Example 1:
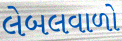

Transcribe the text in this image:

લેબલવાળો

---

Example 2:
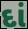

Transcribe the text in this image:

દાં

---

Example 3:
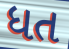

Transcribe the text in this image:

ધત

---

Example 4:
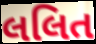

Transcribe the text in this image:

લલિત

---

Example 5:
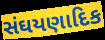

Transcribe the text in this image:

સંઘયણાદિક